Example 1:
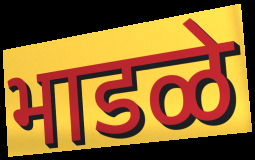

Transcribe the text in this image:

भाडळे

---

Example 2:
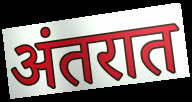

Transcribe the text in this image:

अंतरात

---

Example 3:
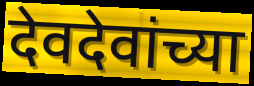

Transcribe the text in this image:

देवदेवांच्या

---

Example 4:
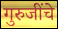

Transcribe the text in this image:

गुरुजींचे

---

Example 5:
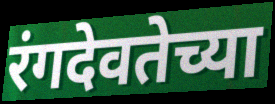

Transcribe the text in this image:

रंगदेवतेच्या